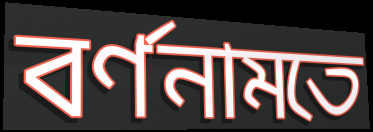
বর্ণনামতে